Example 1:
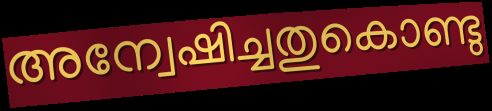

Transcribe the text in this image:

അന്വേഷിച്ചതുകൊണ്ടു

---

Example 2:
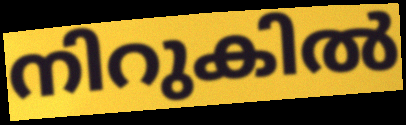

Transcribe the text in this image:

നിറുകിൽ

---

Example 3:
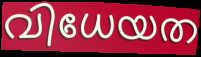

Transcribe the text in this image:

വിധേയത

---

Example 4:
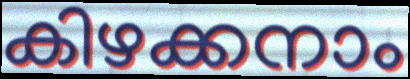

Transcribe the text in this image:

കിഴക്കനാം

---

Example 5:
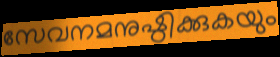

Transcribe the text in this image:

സേവനമനുഷ്ഠിക്കുകയും